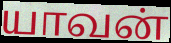
யாவன்